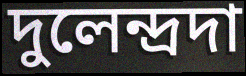
দুলেন্দ্রদা